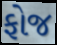
ફોજ